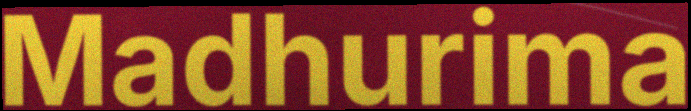
Madhurima